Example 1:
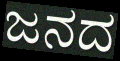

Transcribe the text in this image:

ಜನದ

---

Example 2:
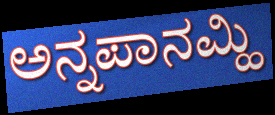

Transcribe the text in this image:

ಅನ್ನಪಾನಮ್ಹಿ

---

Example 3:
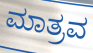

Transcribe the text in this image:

ಮಾತ್ರವ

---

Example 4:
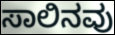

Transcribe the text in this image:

ಸಾಲಿನವು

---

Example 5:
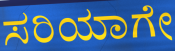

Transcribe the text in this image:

ಸರಿಯಾಗೇ